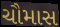
ચૌમાસ